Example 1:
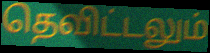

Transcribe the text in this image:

தெவிட்டலும்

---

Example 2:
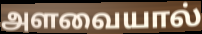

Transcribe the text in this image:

அளவையால்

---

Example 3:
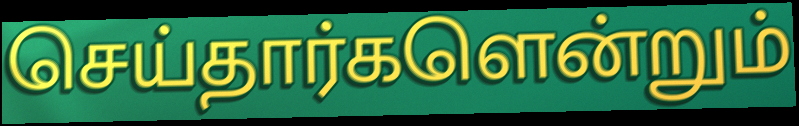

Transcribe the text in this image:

செய்தார்களென்றும்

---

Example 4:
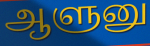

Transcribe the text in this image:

ஆளுனு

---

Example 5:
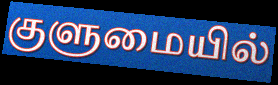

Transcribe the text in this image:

குளுமையில்